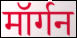
मॉर्गन